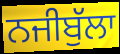
ਨਜੀਬੁੱਲਾ